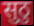
सुठु